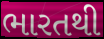
ભારતથી